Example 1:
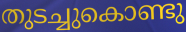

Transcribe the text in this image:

തുടച്ചുകൊണ്ടു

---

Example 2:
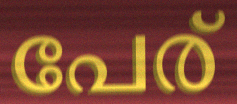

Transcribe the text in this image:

പേര്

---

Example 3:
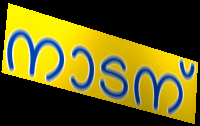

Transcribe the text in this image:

നാടന്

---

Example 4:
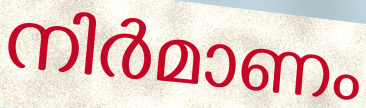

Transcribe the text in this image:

നിർമാണം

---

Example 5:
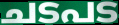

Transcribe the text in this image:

ചടപട